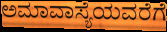
ಅಮಾವಾಸ್ಯೆಯವರೆಗೆ